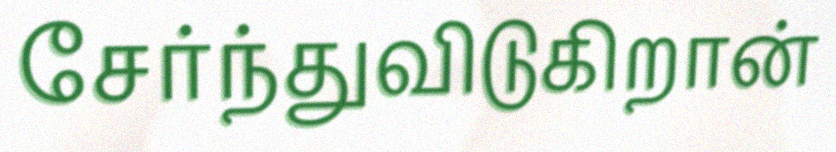
சேர்ந்துவிடுகிறான்